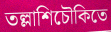
তল্লাশিচৌকিতে